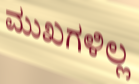
ಮುಖಗಳಿಲ್ಲ